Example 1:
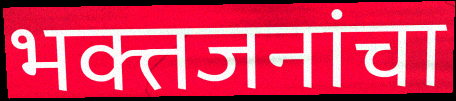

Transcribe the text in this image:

भक्तजनांचा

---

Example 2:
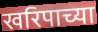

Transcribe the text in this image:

खरिपाच्या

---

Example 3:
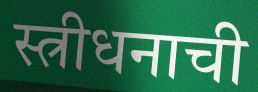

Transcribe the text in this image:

स्त्रीधनाची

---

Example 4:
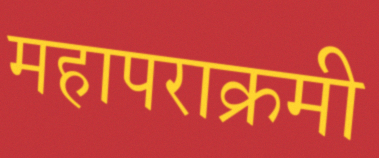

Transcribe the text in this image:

महापराक्रमी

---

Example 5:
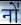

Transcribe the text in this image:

नो॑